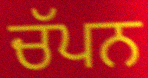
ਚੱਪਨ